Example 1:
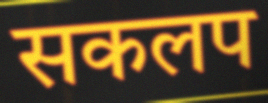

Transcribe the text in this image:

सकलप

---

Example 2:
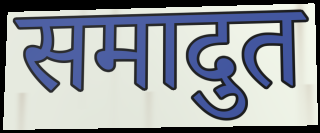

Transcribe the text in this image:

समादुत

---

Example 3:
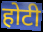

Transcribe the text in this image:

होटी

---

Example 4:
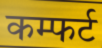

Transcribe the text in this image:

कम्फर्ट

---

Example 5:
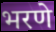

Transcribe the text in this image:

भरणे